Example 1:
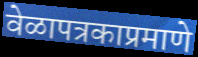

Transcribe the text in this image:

वेळापत्रकाप्रमाणे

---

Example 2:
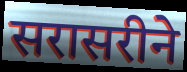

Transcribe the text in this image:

सरासरीने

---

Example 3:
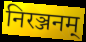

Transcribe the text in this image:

निरञ्जनम्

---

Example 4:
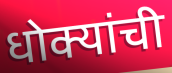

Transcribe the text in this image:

धोक्यांची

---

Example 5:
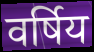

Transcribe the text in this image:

वर्षिय